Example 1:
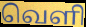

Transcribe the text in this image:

வெளி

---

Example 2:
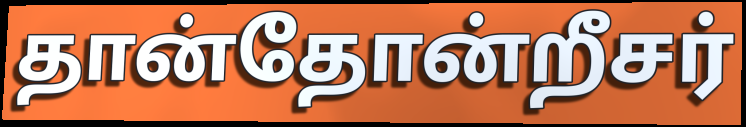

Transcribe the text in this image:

தான்தோன்றீசர்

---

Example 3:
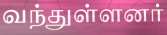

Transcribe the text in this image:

வந்துள்ளனர்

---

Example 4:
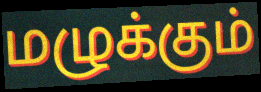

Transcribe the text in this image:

மழுக்கும்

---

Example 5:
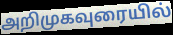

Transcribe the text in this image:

அறிமுகவுரையில்